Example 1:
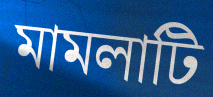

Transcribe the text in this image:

মামলাটি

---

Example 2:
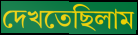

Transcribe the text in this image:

দেখতেছিলাম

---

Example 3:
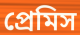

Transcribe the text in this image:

প্রেমিস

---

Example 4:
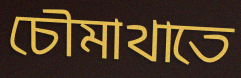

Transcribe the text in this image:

চৌমাথাতে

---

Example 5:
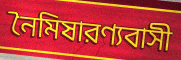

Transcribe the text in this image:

নৈমিষারণ্যবাসী